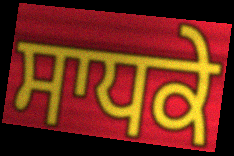
ਸਾਧਕੇ